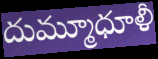
దుమ్మూధూళీ